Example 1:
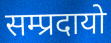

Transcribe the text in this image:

सम्प्रदायो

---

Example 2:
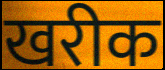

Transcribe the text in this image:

खरीक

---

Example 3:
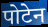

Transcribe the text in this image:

पोटेन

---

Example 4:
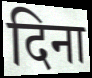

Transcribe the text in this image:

दिना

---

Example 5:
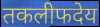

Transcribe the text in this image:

तकलीफदेय